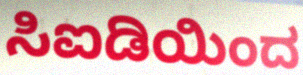
ಸಿಐಡಿಯಿಂದ